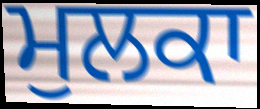
ਮੁਲਕਾ